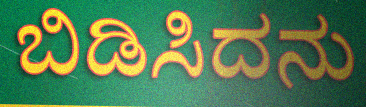
ಬಿಡಿಸಿದನು